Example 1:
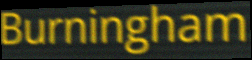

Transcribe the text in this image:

Burningham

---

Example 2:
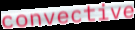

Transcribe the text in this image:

convective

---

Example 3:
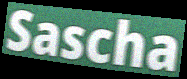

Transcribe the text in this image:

Sascha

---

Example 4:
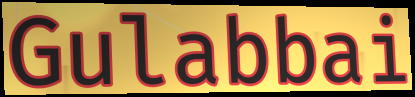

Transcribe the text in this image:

Gulabbai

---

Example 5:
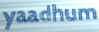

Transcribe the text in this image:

yaadhum